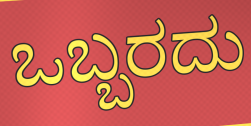
ಒಬ್ಬರದು